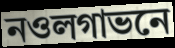
নওলগাভনে